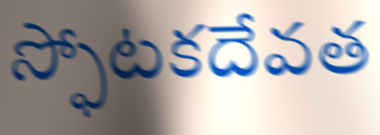
స్ఫోటకదేవత